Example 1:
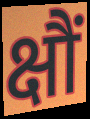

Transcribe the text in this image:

क्षौं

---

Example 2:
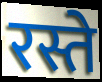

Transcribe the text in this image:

रस्ते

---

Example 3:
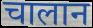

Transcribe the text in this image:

चालान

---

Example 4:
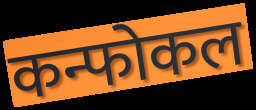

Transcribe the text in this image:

कन्फोकल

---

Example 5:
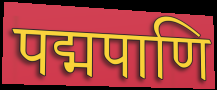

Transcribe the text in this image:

पद्मपाणि